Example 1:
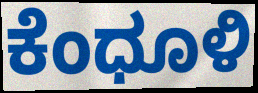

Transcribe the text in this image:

ಕೆಂಧೂಳಿ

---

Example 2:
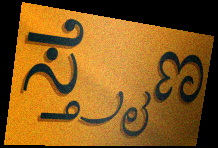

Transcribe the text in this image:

ಸ್ತ್ರೈಣ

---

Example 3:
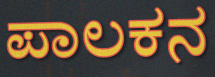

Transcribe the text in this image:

ಪಾಲಕನ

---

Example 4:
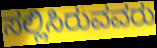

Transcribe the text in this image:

ಸಲ್ಲಿಸಿರುವವರು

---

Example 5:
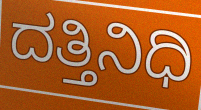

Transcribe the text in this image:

ದತ್ತಿನಿಧಿ